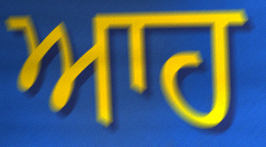
ਆਹ